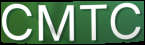
CMTC